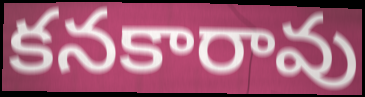
కనకారావు